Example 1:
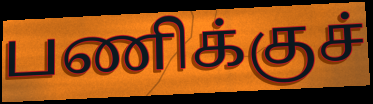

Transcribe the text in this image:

பணிக்குச்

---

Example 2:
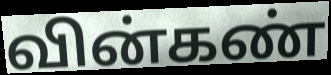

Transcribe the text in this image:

வின்கண்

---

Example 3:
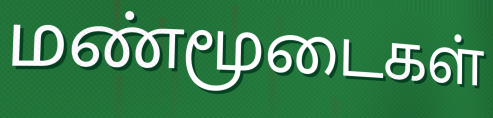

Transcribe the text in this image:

மண்மூடைகள்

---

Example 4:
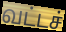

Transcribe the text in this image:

வட்டச்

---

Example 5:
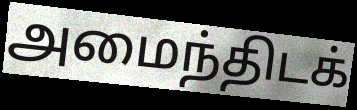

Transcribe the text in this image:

அமைந்திடக்